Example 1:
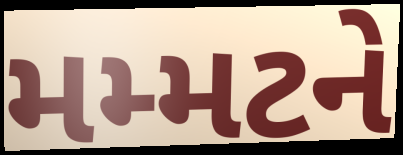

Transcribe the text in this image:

મમ્મટને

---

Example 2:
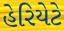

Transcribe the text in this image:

હેરિયેટે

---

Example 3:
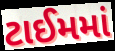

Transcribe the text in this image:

ટાઈમમાં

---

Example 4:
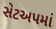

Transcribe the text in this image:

સેટઅપમાં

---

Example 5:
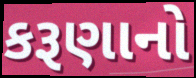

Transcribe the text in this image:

કરૂણાનો